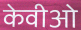
केवीओ